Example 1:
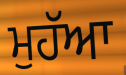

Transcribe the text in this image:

ਮੁਹੱਆ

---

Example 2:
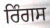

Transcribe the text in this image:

ਰਿੰਗਸ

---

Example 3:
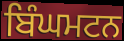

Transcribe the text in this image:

ਬਿੰਘਮਟਨ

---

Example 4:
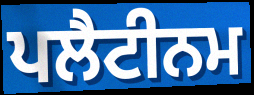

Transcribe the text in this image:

ਪਲੈਟੀਨਮ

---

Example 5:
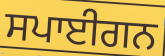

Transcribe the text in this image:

ਸਪਾਈਗਨ